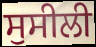
ਸੁਸੀਲੀ